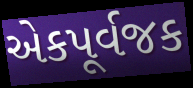
એકપૂર્વજક